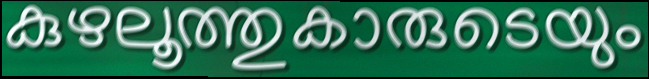
കുഴലൂത്തുകാരുടെയും